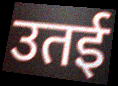
उतई